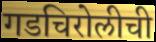
गडचिरोलीची